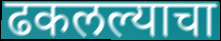
ढकलल्याचा